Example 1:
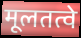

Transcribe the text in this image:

मूलतत्वे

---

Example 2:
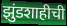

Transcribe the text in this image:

झुंडशाहीची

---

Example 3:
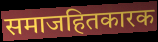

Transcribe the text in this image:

समाजहितकारक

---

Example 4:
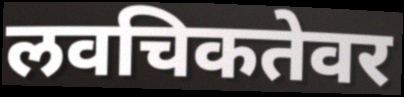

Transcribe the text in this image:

लवचिकतेवर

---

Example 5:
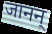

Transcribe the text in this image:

जानन्